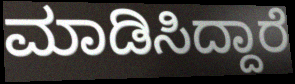
ಮಾಡಿಸಿದ್ದಾರೆ